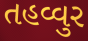
તહવ્વુર